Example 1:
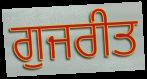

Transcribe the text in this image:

ਗੁਜਰੀਤ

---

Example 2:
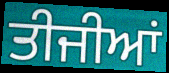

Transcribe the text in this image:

ਤੀਜੀਆਂ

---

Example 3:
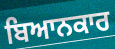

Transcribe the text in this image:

ਬਿਆਨਕਾਰ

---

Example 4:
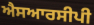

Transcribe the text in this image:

ਐਸਆਰਸੀਪੀ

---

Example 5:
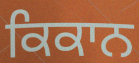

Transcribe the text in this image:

ਕਿਕਾਨ